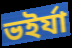
ভইর্যা